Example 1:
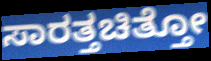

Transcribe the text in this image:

ಸಾರತ್ತಚಿತ್ತೋ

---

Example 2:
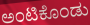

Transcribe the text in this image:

ಅಂಟಿಕೊಂಡು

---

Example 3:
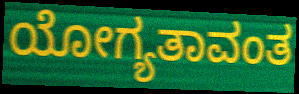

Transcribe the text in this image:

ಯೋಗ್ಯತಾವಂತ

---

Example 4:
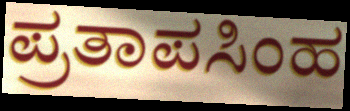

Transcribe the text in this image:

ಪ್ರತಾಪಸಿಂಹ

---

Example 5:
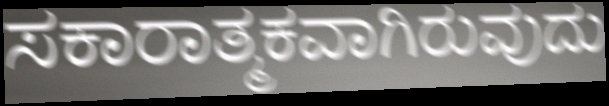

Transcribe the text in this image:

ಸಕಾರಾತ್ಮಕವಾಗಿರುವುದು